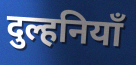
दुल्हनियाँ